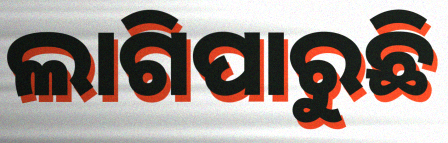
ଲାଗିପାରୁଛି